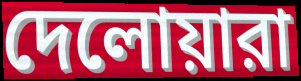
দেলোয়ারা